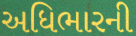
અધિભારની